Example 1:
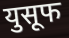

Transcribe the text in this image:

युसूफ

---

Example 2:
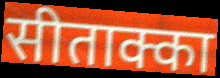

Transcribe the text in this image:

सीताक्का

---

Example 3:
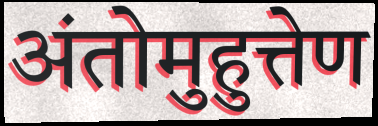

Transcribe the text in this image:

अंतोमुहुत्तेण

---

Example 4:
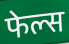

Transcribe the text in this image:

फेल्स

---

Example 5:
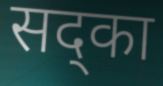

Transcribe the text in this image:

सद्का